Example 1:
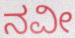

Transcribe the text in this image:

ನವೀ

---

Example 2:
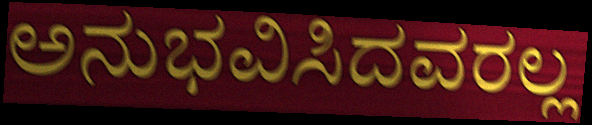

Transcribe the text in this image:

ಅನುಭವಿಸಿದವರಲ್ಲ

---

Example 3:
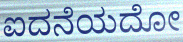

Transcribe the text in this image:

ಐದನೆಯದೋ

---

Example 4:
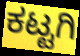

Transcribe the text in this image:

ಕಟ್ಟಗಿ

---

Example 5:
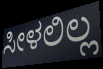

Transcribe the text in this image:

ಸೀಳಲಿಲ್ಲ